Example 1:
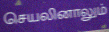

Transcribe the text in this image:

செயலினாலும்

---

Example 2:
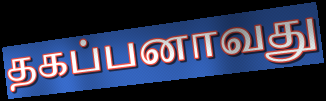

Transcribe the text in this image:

தகப்பனாவது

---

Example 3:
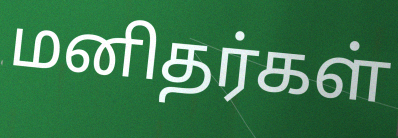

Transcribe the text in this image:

மனிதர்கள்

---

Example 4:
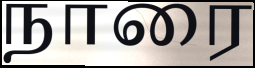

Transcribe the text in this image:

நாரை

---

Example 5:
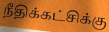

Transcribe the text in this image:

நீதிக்கட்சிக்கு